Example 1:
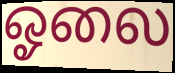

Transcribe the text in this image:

ஓலை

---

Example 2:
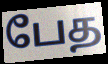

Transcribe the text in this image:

பேத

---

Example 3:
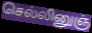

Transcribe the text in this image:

செல்லினுஞ்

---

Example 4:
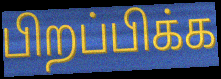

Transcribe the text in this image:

பிறப்பிக்க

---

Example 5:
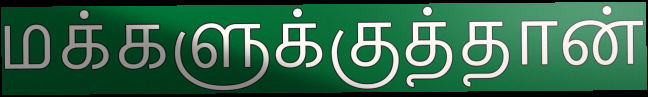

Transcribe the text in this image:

மக்களுக்குத்தான்